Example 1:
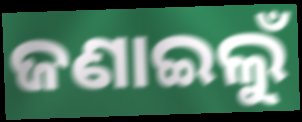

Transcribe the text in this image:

ଜଣାଇଲୁଁ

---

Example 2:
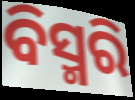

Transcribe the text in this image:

ବିସ୍ମରି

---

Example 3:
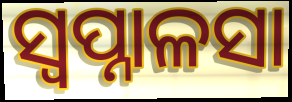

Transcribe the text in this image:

ସ୍ୱପ୍ନାଳସା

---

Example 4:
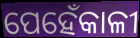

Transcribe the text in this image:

ପେହେଁକାଳୀ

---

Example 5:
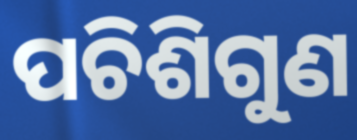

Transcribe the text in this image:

ପଚିଶିଗୁଣ